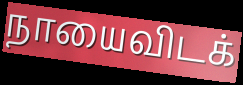
நாயைவிடக்